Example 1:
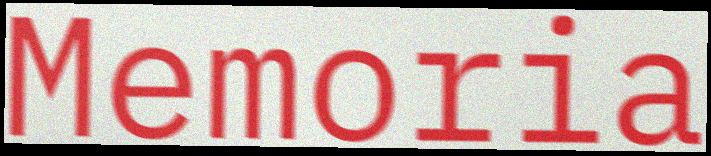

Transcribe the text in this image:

Memoria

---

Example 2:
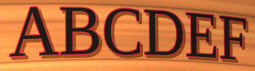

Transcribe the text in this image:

ABCDEF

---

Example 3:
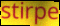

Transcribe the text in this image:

stirpe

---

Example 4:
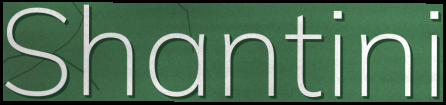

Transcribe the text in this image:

Shantini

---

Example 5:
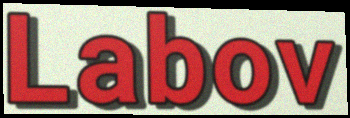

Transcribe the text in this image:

Labov